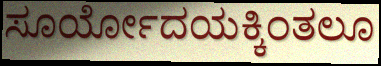
ಸೂರ್ಯೋದಯಕ್ಕಿಂತಲೂ